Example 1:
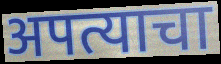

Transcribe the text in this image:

अपत्याचा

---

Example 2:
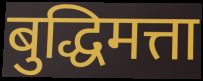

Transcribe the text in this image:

बुद्धिमत्ता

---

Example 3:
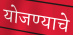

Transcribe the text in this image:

योजण्याचे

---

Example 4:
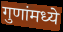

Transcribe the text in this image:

गुणांमध्ये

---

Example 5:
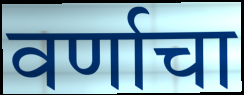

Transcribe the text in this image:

वर्णाचा